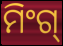
ମିଂଗ୍